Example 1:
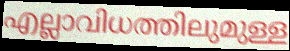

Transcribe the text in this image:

എല്ലാവിധത്തിലുമുള്ള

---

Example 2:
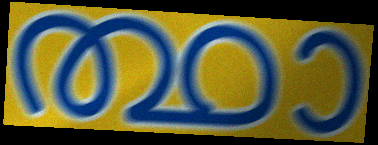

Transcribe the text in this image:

ത്ഥാ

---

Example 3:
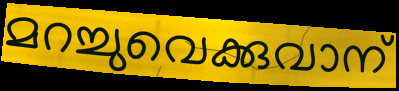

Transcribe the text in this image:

മറച്ചുവെക്കുവാന്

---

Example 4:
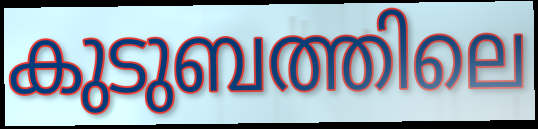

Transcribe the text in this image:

കുടുബത്തിലെ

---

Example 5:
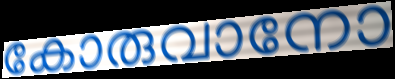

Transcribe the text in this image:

കോരുവാനോ